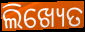
ଲିଖ୍ଯେତ